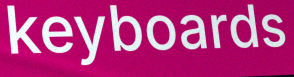
keyboards